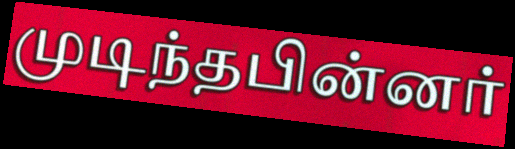
முடிந்தபின்னர்